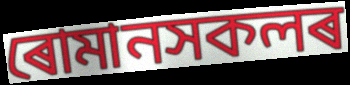
ৰোমানসকলৰ